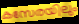
കസേരയിലും